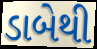
ડાબેથી